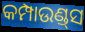
କମ୍ପାଉଣ୍ଡ୍‌ସ